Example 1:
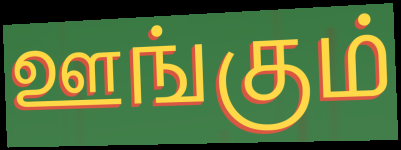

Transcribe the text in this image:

ஊங்கும்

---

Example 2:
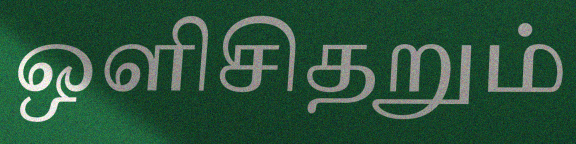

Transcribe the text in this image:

ஒளிசிதறும்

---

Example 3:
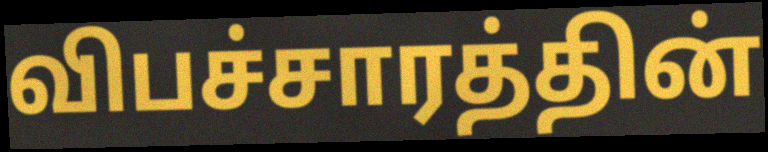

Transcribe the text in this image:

விபச்சாரத்தின்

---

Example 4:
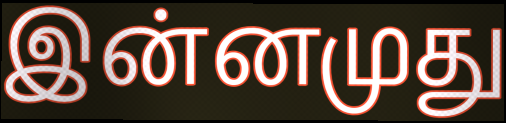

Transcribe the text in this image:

இன்னமுது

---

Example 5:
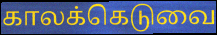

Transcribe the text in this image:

காலக்கெடுவை